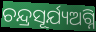
ଚନ୍ଦ୍ରସୂର୍ଯ୍ୟଅଗ୍ନି